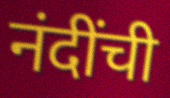
नंदींची